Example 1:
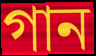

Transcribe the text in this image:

গান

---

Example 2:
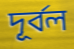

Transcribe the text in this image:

দূর্বল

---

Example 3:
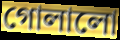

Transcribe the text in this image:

গোলালো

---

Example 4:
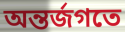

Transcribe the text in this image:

অন্তর্জগতে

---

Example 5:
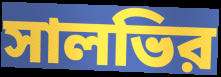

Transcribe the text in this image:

সালভির